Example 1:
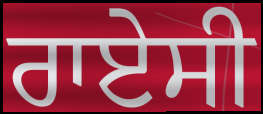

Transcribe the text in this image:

ਰਾਏਸੀ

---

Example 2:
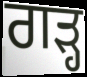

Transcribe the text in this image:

ਗੜ੍ਹ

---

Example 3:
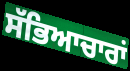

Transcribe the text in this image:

ਸੱਭਿਆਚਾਰਾਂ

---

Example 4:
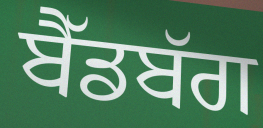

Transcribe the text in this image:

ਬੈੱਡਬੱਗ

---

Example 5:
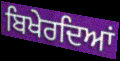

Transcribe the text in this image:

ਬਿਖੇਰਦਿਆਂ